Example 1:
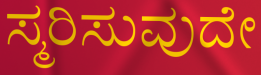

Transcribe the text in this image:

ಸ್ಮರಿಸುವುದೇ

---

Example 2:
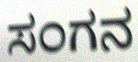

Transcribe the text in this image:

ಸಂಗನ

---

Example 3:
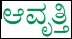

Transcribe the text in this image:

ಆವೃತ್ತಿ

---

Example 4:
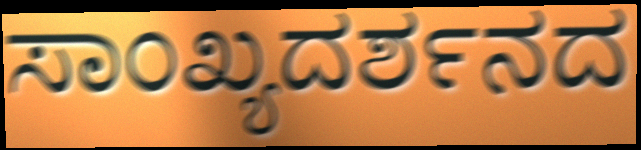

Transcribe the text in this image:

ಸಾಂಖ್ಯದರ್ಶನದ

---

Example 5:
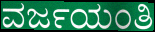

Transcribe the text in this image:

ವರ್ಜಯಂತಿ